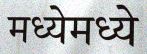
मध्येमध्ये